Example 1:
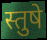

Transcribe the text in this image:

स्तुषे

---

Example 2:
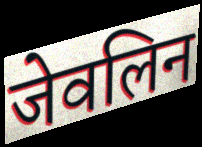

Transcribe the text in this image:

जेवलिन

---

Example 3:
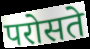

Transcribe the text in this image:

परोसते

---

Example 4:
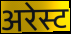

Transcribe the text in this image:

अरेस्ट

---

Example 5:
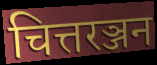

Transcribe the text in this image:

चित्तरञ्जन